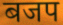
बजप